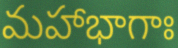
మహాభాగాః